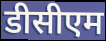
डीसीएम